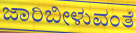
ಜಾರಿಬೀಳುವಂತೆ